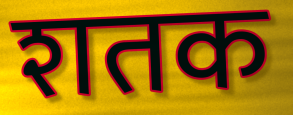
शतक